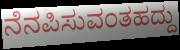
ನೆನಪಿಸುವಂತಹದ್ದು